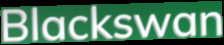
Blackswan